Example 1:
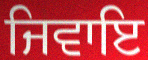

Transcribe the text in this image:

ਜਿਵਾਇ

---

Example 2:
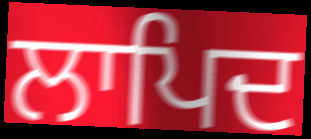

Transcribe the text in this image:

ਲਾਪਿਦ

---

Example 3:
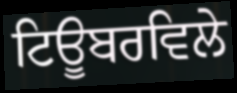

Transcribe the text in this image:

ਟਿਊਬਰਵਿਲੇ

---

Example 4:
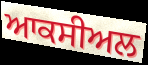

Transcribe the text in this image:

ਆਕਸੀਅਲ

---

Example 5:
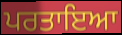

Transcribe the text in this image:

ਪਰਤਾਇਆ